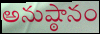
అనుష్ఠానం